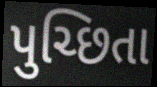
પુચ્છિતા